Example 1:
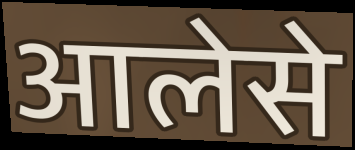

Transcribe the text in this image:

आलेसे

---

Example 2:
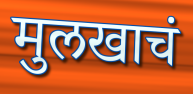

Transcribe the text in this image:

मुलखाचं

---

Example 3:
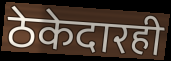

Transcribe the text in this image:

ठेकेदारही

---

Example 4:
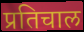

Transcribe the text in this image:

प्रतिचाल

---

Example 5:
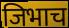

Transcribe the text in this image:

जिभाच